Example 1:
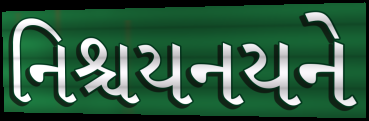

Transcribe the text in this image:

નિશ્ચયનયને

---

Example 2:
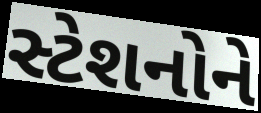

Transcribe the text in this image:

સ્ટેશનોને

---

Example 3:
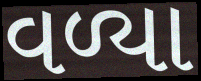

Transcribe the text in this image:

વળ્યા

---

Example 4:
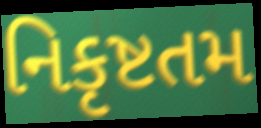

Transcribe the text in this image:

નિકૃષ્ટતમ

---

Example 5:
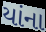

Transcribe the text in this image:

યાંના